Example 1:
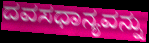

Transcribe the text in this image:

ದವಸಧಾನ್ಯವನ್ನು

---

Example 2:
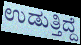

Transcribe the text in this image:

ಉಡುತ್ತಿದ್ದೆ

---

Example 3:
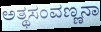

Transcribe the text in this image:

ಅತ್ಥಸಂವಣ್ಣನಾ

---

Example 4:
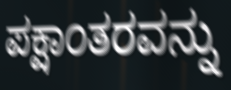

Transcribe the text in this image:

ಪಕ್ಷಾಂತರವನ್ನು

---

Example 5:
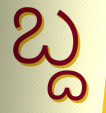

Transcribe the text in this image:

ಬ್ದ